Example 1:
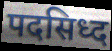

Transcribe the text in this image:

पदसिध्द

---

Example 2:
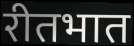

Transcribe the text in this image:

रीतभात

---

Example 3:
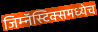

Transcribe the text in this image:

जिम्नॅस्टिक्समध्येच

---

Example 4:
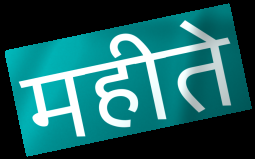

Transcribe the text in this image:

महीते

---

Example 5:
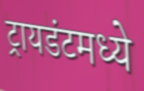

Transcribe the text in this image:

ट्रायडंटमध्ये